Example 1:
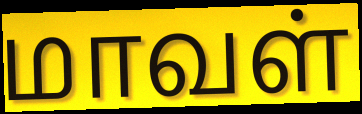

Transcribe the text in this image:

மாவள்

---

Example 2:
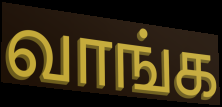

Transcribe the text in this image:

வாங்க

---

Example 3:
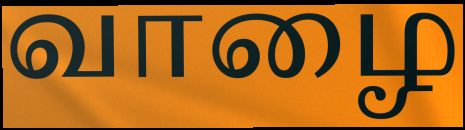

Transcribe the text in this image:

வாழை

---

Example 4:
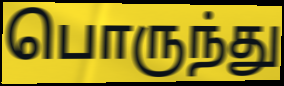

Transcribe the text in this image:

பொருந்து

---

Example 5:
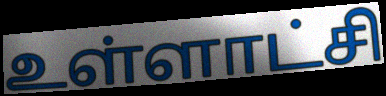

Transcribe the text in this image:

உள்ளாட்சி